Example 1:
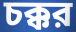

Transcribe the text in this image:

চক্কর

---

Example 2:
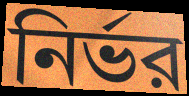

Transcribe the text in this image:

নির্ভর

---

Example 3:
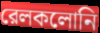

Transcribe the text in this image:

রেলকলোনি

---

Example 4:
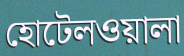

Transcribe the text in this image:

হোটেলওয়ালা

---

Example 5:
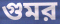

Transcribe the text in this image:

গুমর